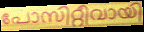
പോസിറ്റീവായി